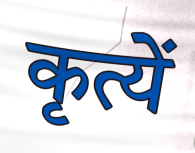
कृत्यें